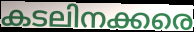
കടലിനക്കരെ